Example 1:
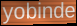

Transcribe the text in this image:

yobinde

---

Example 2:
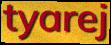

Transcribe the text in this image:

tyarej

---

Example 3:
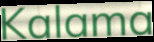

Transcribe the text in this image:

Kalama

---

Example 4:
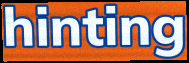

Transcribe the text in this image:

hinting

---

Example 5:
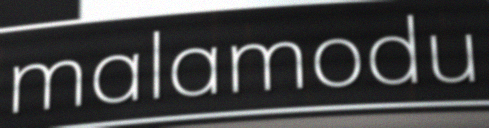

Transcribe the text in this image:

malamodu